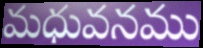
మధువనము